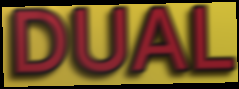
DUAL